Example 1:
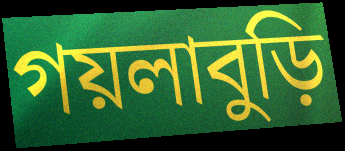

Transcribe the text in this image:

গয়লাবুড়ি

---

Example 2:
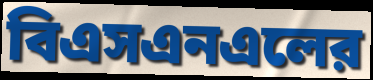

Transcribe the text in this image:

বিএসএনএলের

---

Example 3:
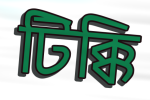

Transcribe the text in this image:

টিক্কি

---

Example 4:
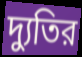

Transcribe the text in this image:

দ্যুতির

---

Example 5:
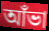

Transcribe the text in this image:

আঁভা